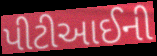
પીટીઆઈની